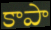
కాపా